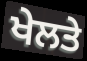
ਖੇਲਤੇ